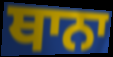
ਥਾਨਾ